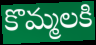
కొమ్మలకి